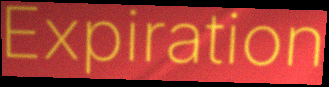
Expiration